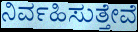
ನಿರ್ವಹಿಸುತ್ತೇವೆ